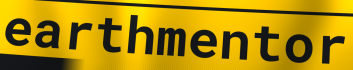
earthmentor